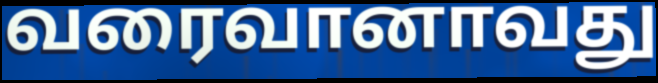
வரைவானாவது